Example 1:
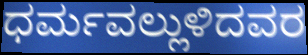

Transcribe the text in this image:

ಧರ್ಮವಲ್ಲುಳಿದವರ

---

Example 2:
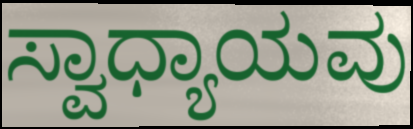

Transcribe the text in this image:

ಸ್ವಾಧ್ಯಾಯವು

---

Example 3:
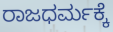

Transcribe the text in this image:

ರಾಜಧರ್ಮಕ್ಕೆ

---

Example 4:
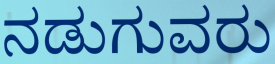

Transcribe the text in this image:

ನಡುಗುವರು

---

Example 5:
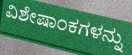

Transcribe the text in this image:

ವಿಶೇಷಾಂಕಗಳನ್ನು